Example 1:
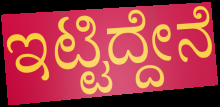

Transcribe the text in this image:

ಇಟ್ಟಿದ್ದೇನೆ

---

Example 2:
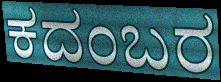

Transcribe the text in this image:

ಕದಂಬರ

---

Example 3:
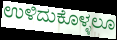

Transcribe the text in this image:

ಉಳಿದುಕೊಳ್ಳಲೂ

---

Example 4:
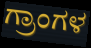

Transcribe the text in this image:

ಗ್ರಾಂಗಳ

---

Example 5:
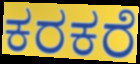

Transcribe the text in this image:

ಕರಕರೆ